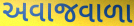
અવાજવાળા